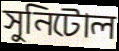
সুনিটোল